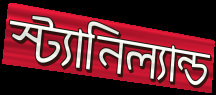
স্ট্যানিল্যান্ড